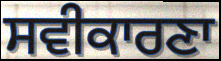
ਸਵੀਕਾਰਣਾ